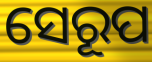
ସେରୂପ